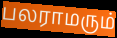
பலராமரும்